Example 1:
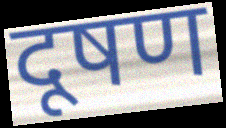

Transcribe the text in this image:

दूषण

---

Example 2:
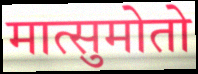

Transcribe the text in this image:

मात्सुमोतो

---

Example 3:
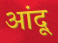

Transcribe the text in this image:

आंदू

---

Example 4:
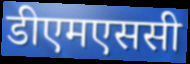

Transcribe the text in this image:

डीएमएससी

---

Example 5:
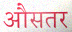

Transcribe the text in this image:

औसतर